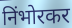
निंभोरकर